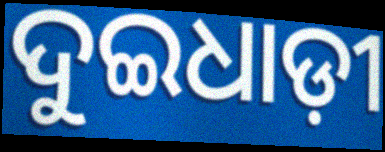
ଦୁଇଧାଡ଼ୀ